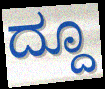
ದ್ದೂ